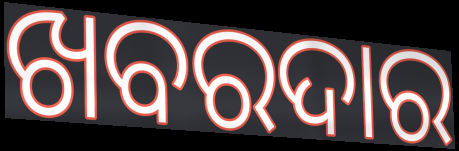
ଖବରଦାର